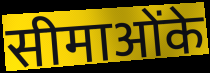
सीमाओंके